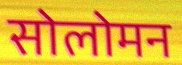
सोलोमन